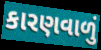
કારણવાળું